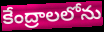
కేంద్రాలలోను